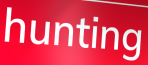
hunting